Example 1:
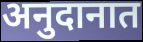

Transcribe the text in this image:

अनुदानात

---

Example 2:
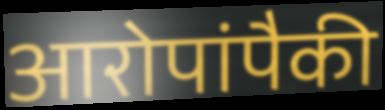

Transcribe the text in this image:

आरोपांपैकी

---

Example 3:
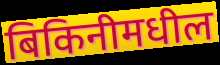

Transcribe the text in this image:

बिकिनीमधील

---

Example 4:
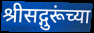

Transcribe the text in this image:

श्रीसद्गुरूंच्या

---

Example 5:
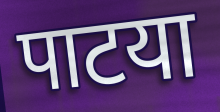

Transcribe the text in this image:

पाटया